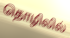
தொழிலில்